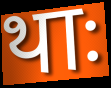
थाः